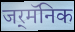
जर्मॅनिक